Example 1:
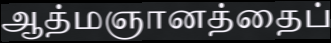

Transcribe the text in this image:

ஆத்மஞானத்தைப்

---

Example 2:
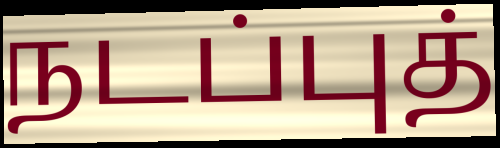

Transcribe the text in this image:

நடப்புத்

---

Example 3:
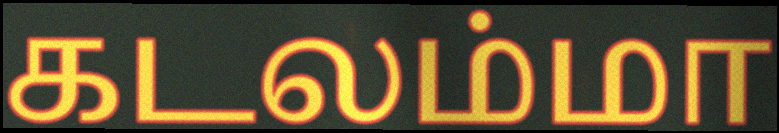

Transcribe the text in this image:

கடலம்மா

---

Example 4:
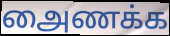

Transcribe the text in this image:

அைணக்க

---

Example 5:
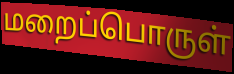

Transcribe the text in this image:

மறைப்பொருள்